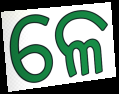
ଳେ